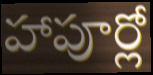
హాపూర్లో